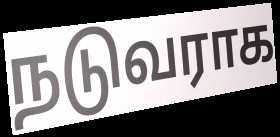
நடுவராக